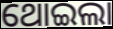
ଥୋଇଲା